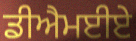
ਡੀਐਮਈਏ